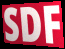
SDF